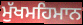
ਮੁੱਖਮਹਿਮਾਨ